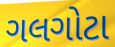
ગલગોટા